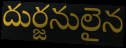
దుర్జనులైన